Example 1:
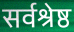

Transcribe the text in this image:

सर्वश्रेष्ठ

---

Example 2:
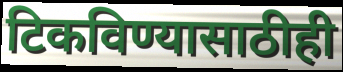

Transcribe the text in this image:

टिकविण्यासाठीही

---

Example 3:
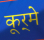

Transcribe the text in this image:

कूर्मे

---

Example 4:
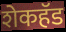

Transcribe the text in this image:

शेकहॅड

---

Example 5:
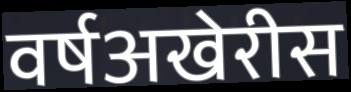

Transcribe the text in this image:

वर्षअखेरीस